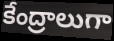
కేంద్రాలుగా